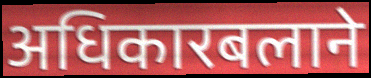
अधिकारबलाने